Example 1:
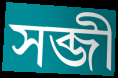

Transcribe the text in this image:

সব্জী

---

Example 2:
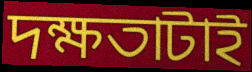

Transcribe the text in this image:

দক্ষতাটাই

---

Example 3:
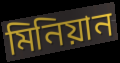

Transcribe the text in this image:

মিনিয়ান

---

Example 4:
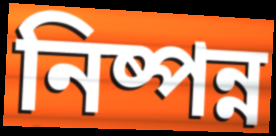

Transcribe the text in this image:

নিষ্পন্ন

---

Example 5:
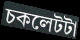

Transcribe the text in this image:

চকলেটটা